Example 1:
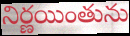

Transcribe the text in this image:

నిర్ణయింతును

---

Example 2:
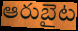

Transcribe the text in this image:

ఆరుబైట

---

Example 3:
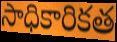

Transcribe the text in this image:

సాధికారికత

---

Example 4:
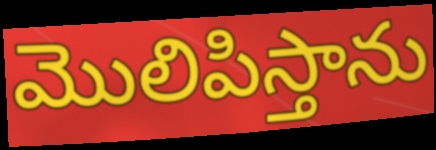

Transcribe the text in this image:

మొలిపిస్తాను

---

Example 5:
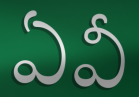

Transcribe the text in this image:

ఏవీ